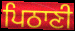
ਪਿਠਾਣੀ